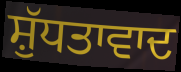
ਸ਼ੁੱਧਤਾਵਾਦ